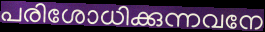
പരിശോധിക്കുന്നവനേ